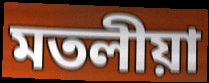
মতলীয়া